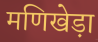
मणिखेड़ा